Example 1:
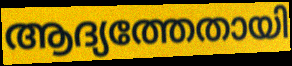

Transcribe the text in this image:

ആദ്യത്തേതായി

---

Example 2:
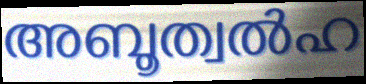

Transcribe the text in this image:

അബൂത്വൽഹ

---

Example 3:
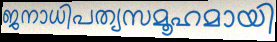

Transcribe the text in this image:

ജനാധിപത്യസമൂഹമായി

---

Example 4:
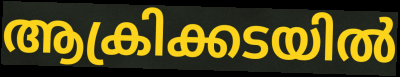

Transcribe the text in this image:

ആക്രിക്കടയിൽ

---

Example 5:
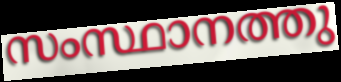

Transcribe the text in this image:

സംസ്ഥാനത്തു